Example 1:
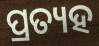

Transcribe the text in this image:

ପ୍ରତ୍ୟହ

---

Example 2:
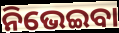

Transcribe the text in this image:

ନିଭେଇବା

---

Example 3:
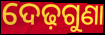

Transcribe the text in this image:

ଦେଢ଼ଗୁଣା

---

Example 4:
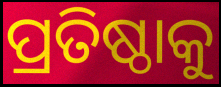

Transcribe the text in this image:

ପ୍ରତିଷ୍ଠାକୁ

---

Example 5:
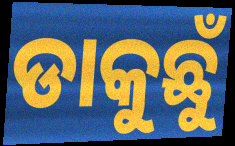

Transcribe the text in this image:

ଡାକୁଛୁଁ